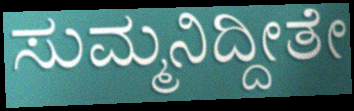
ಸುಮ್ಮನಿದ್ದೀತೇ